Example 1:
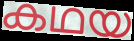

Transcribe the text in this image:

കഥയ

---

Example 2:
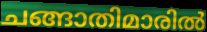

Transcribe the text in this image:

ചങ്ങാതിമാരിൽ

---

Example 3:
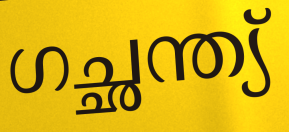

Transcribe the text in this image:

ഗച്ഛന്ത്യ്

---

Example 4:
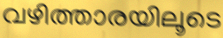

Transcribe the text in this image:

വഴിത്താരയിലൂടെ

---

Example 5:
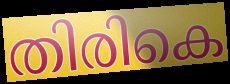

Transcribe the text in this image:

തിരികെ